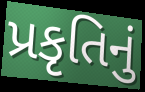
પ્રકૃતિનું